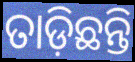
ତାଡ଼ିଛନ୍ତି